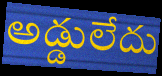
అడ్డులేదు